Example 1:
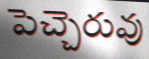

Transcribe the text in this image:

పెచ్చెరువు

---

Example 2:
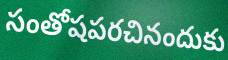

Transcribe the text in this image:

సంతోషపరచినందుకు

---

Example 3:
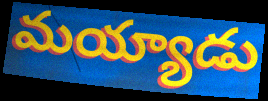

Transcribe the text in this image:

మయ్యాడు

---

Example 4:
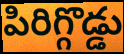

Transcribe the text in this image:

పిరిగ్గొడ్డు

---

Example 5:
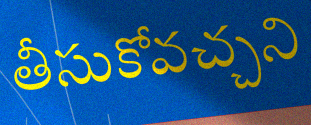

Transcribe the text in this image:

తీసుకోవచ్చని